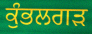
ਕੁੰਭਲਗੜ